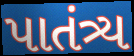
પાતંત્ર્ય